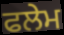
ਫਲੇਮ